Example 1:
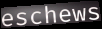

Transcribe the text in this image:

eschews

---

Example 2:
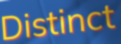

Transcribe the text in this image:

Distinct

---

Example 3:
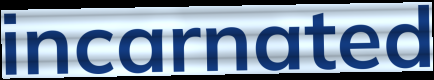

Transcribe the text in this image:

incarnated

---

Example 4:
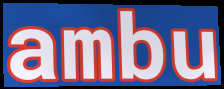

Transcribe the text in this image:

ambu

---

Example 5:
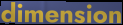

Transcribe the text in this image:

dimension